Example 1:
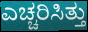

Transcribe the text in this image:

ಎಚ್ಚರಿಸಿತ್ತು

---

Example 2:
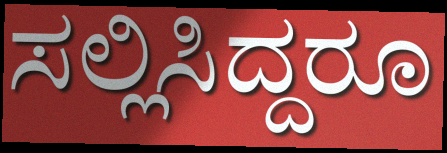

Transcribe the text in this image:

ಸಲ್ಲಿಸಿದ್ದರೂ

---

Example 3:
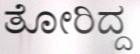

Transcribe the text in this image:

ತೋರಿದ್ದ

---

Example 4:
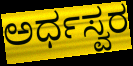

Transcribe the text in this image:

ಅರ್ಧಸ್ವರ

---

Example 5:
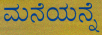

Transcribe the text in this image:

ಮನೆಯನ್ನೆ